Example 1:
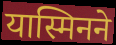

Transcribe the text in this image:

यास्मिनने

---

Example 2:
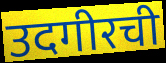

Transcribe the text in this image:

उदगीरची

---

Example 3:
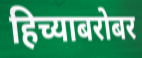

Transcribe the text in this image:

हिच्याबरोबर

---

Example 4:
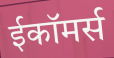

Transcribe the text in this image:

ईकॉमर्स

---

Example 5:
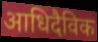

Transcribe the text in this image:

आधिदैविक